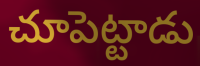
చూపెట్టాడు